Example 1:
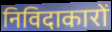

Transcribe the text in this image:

निविदाकारों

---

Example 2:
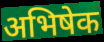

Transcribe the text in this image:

अभिषेक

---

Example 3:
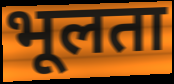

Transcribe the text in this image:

भूलता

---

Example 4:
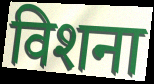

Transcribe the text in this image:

विशना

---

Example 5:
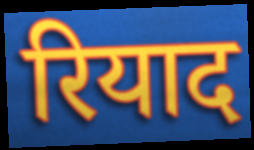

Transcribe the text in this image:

रियाद